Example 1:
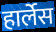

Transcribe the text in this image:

हार्लेस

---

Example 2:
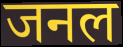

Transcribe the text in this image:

जनल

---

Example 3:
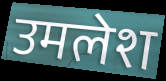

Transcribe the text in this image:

उमलेश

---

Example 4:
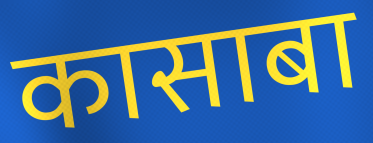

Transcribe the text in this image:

कासाबा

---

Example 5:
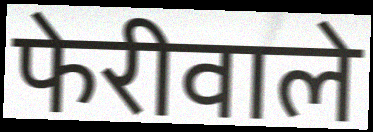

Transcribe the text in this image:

फेरीवाले